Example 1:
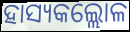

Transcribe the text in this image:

ହାସ୍ୟକଲ୍ଲୋଳ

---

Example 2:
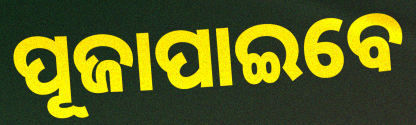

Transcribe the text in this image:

ପୂଜାପାଇବେ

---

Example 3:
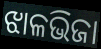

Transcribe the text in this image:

ଝାଳଭିଜା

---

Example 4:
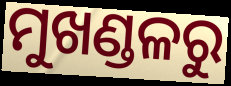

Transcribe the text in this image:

ମୁଖଣ୍ଡଳରୁ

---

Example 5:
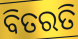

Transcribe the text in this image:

ବିତରତି